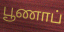
பூணாப்